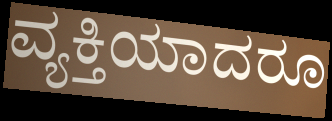
ವ್ಯಕ್ತಿಯಾದರೂ